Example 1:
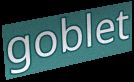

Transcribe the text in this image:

goblet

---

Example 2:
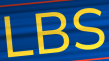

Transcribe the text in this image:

LBS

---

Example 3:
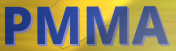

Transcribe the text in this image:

PMMA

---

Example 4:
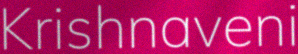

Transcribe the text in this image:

Krishnaveni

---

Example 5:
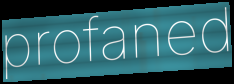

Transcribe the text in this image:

profaned